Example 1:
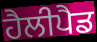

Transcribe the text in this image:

ਹੈਲੀਪੈਡ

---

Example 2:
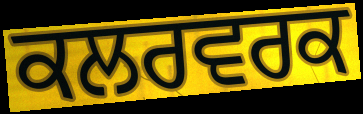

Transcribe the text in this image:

ਕਲਰਵਰਕ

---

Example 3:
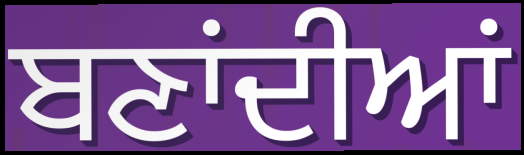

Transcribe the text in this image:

ਬਣਾਂਦੀਆਂ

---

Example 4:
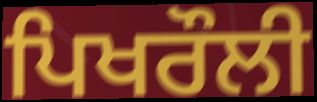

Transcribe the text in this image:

ਪਿਖਰੌਲੀ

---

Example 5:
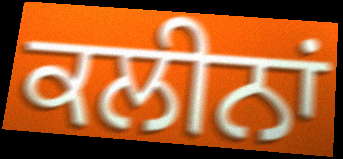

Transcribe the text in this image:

ਕਲੀਨਾਂ